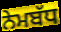
ਨੇਮਬੱਧ